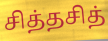
சித்தசித்